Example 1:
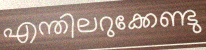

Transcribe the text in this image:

എന്തിലറുക്കേണ്ടു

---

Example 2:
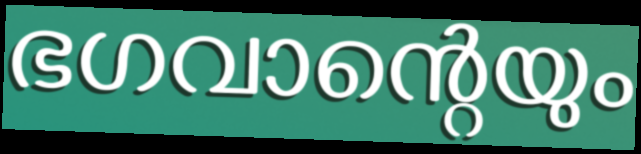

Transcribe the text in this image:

ഭഗവാന്റെയും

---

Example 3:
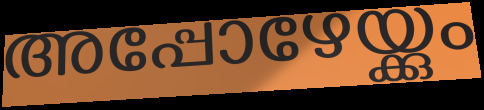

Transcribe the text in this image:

അപ്പോഴേയ്ക്കും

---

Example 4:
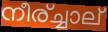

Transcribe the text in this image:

നീര്ച്ചാല്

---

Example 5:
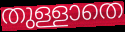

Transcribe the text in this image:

തുള്ളാതെ